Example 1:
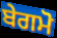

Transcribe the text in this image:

ਬੇਗਮੋ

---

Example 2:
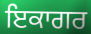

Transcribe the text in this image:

ਇਕਾਗਰ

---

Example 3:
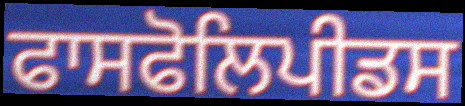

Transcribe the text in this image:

ਫਾਸਫੋਲਿਪੀਡਸ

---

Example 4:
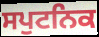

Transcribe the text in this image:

ਸਪੁਟਨਿਕ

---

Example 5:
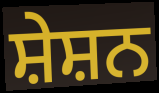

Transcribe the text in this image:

ਸ਼ੇਸ਼ਨ